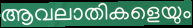
ആവലാതികളെയും